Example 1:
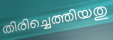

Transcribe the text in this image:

തിരിച്ചെത്തിയതു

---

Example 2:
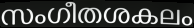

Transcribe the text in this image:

സംഗീതശകലം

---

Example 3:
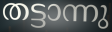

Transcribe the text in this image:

തട്ടാന്നു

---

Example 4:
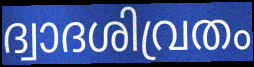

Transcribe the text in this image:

ദ്വാദശിവ്രതം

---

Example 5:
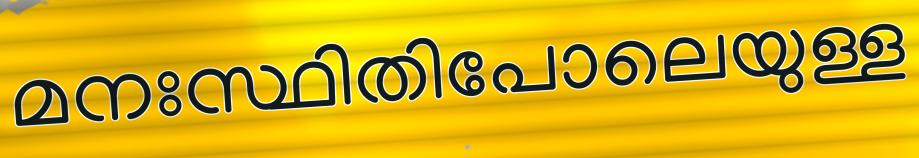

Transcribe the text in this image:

മനഃസ്ഥിതിപോലെയുള്ള